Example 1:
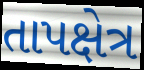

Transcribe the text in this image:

તાપક્ષેત્ર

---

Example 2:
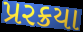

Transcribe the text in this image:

પ્રરક્રયા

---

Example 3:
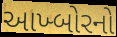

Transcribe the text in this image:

આખ્બોરનો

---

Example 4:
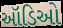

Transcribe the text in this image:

ઑડિઓ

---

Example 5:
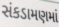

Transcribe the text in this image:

સંકડામણમાં